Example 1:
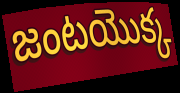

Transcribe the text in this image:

జంటయొక్క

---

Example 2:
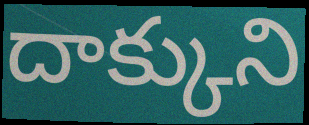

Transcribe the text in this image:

దాక్కుని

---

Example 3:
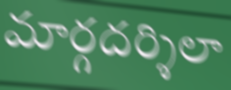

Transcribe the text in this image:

మార్గదర్శిలా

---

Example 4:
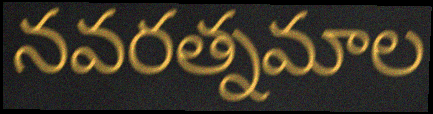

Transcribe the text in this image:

నవరత్నమాల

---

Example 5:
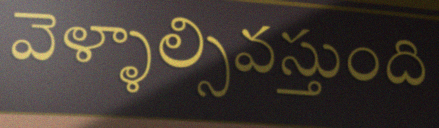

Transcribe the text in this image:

వెళ్ళాల్సివస్తుంది